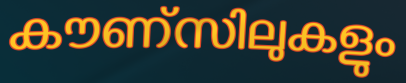
കൗണ്സിലുകളും